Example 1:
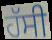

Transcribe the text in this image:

ਹੱਸੀ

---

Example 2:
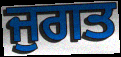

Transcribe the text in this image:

ਜੁਗਤ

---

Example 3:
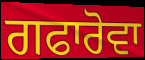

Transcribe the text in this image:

ਗਫਾਰੋਵਾ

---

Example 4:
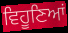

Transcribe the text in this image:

ਵਿਹੂਣਿਆਂ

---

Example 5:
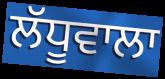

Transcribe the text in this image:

ਲੱਧੂਵਾਲਾ